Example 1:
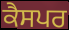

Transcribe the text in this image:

ਕੈਸਪਰ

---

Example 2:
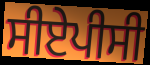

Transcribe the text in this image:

ਸੀਏਪੀਸੀ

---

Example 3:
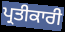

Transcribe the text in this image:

ਪ੍ਰਤੀਕਾਰੀ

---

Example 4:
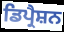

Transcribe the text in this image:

ਡਿਪ੍ਰੈਸ਼ਨ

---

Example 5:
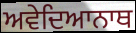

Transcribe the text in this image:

ਅਵੇਦਿਆਨਾਥ